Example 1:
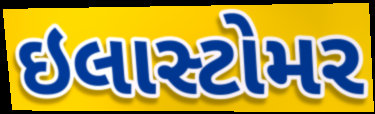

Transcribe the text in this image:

ઇલાસ્ટોમર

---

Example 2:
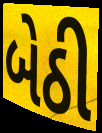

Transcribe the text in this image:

બેઠી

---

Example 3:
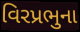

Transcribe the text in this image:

વિરપ્રભુના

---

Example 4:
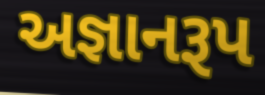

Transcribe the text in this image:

અજ્ઞાનરૂપ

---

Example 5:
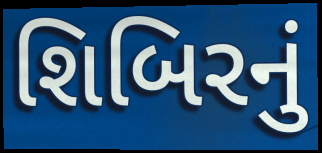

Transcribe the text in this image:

શિબિરનું